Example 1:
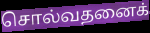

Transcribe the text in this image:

சொல்வதனைக்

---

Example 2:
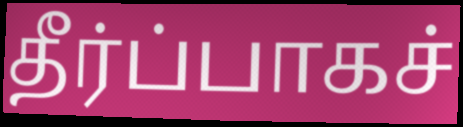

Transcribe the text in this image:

தீர்ப்பாகச்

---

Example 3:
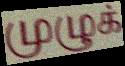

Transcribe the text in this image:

முழுக்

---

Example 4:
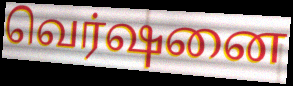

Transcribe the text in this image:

வெர்ஷனை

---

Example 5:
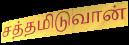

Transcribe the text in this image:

சத்தமிடுவான்